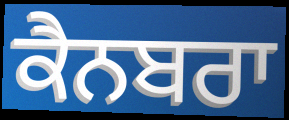
ਕੈਨਬਰਾ